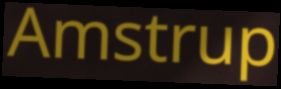
Amstrup